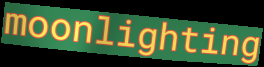
moonlighting